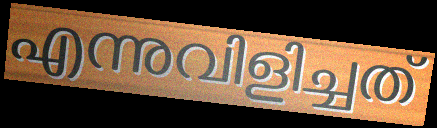
എന്നുവിളിച്ചത്